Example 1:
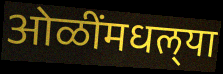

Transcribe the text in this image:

ओळींमधल्या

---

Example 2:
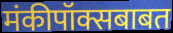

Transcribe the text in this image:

मंकीपॉक्सबाबत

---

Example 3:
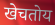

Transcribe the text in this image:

खेचतोय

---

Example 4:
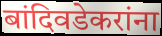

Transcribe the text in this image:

बांदिवडेकरांना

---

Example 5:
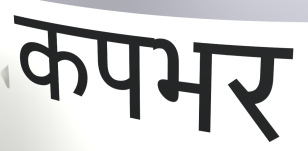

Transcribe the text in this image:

कपभर